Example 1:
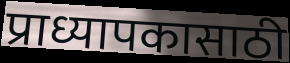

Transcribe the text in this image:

प्राध्यापकासाठी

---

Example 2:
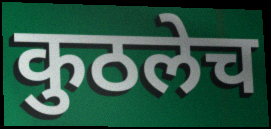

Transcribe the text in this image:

कुठलेच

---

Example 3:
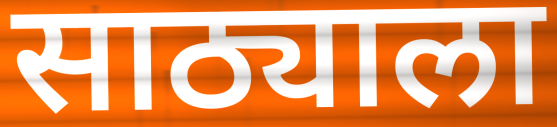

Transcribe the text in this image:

साठ्याला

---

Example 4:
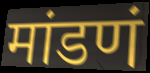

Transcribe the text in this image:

मांडणं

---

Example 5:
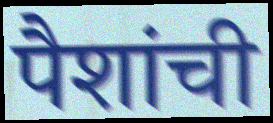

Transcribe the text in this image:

पैशांची